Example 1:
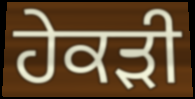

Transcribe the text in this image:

ਹੇਕੜੀ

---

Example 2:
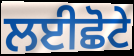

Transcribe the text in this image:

ਲਈਛੋਟੇ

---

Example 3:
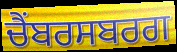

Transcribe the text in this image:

ਚੈਂਬਰਸਬਰਗ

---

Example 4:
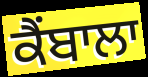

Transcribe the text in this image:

ਕੈਂਬਾਲਾ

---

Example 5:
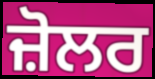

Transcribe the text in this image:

ਜ਼ੋਲਰ